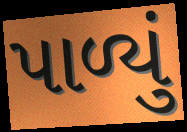
પાળ્યું